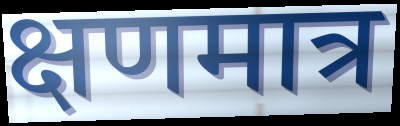
क्षणमात्र